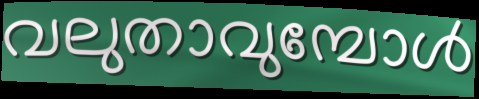
വലുതാവുമ്പോൾ